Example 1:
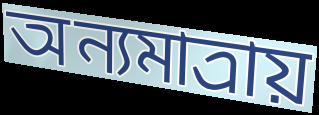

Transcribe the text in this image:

অন্যমাত্রায়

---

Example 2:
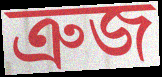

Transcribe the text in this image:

ত্রুজ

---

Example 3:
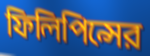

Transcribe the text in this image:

ফিলিপিন্সের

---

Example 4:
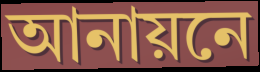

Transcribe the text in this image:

আনায়নে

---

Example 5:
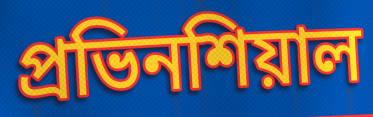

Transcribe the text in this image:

প্রভিনশিয়াল